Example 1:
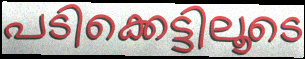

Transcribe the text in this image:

പടിക്കെട്ടിലൂടെ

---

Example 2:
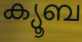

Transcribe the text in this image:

ക്യൂബ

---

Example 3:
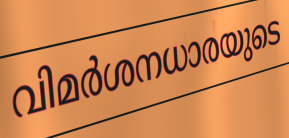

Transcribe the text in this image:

വിമർശനധാരയുടെ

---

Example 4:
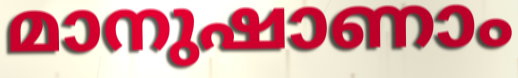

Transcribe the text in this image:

മാനുഷാണാം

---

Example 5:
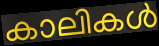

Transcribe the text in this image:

കാലികൾ